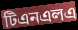
টিএনএলএ